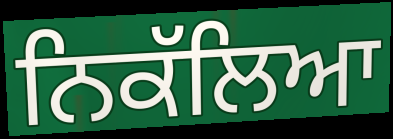
ਨਿਕੱਲਿਆ